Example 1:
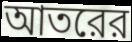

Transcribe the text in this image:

আতরের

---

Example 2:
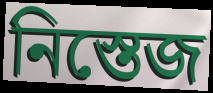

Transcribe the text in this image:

নিস্তেজ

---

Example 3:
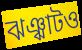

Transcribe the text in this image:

ঝঞ্ঝাটও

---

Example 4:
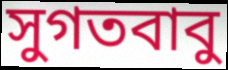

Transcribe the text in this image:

সুগতবাবু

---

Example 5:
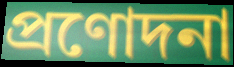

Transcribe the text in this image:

প্রণোদনা